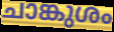
ചാങ്കുശം